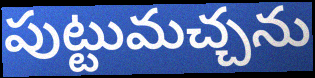
పుట్టుమచ్చను